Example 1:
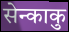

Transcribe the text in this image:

सेन्काकु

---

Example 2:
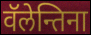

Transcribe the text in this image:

वॅलेन्तिना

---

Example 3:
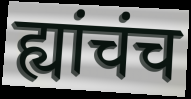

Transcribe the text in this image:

ह्यांचंच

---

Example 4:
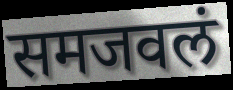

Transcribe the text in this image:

समजवलं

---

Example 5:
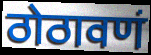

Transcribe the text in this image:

ठोठावणं